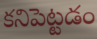
కనిపెట్టడం